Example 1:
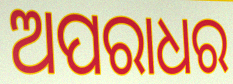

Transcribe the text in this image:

ଅପରାଧର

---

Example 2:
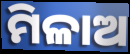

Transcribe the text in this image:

ମିଳାଅ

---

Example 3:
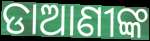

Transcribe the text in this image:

ଡାଆଣୀଙ୍କ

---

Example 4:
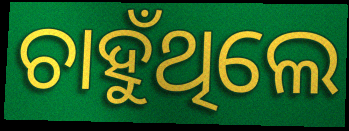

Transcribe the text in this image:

ଚାହୁଁଥିଲେ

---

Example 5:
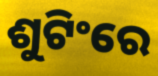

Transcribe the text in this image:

ଶୁଟିଂରେ